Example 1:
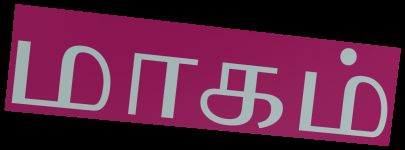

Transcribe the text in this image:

மாகம்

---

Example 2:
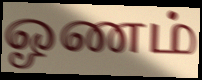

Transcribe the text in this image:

ஓணம்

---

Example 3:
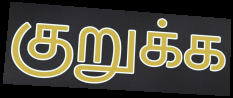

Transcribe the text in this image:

குறுக்க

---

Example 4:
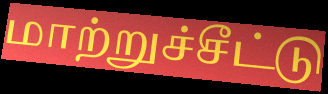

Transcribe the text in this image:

மாற்றுச்சீட்டு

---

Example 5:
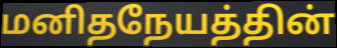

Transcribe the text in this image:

மனிதநேயத்தின்